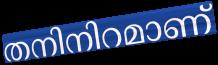
തനിനിറമാണ്